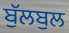
ਬੁੱਲਬੁਲ